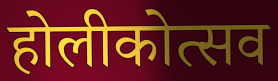
होलीकोत्सव